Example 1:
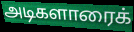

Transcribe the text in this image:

அடிகளாரைக்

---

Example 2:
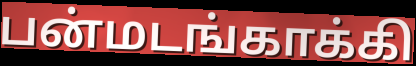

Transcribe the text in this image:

பன்மடங்காக்கி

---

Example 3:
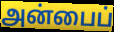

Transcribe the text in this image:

அன்பைப்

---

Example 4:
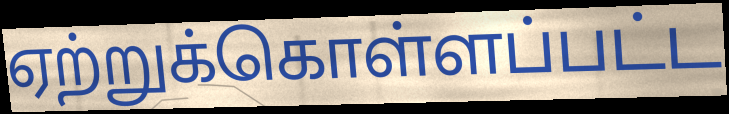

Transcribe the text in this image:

ஏற்றுக்கொள்ளப்பட்ட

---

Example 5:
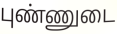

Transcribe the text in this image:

புண்ணுடை